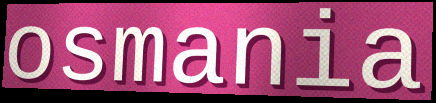
osmania